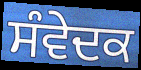
ਸੰਵੇਦਕ